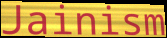
Jainism